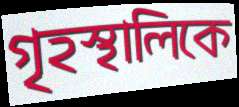
গৃহস্থালিকে